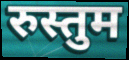
रुस्तुम